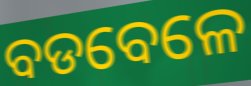
ବଡବେଳେ